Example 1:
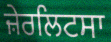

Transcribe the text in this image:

ਜ਼ੇਰਲਿਟਸਾ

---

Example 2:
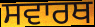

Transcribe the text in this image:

ਸਵਾਰਥ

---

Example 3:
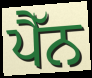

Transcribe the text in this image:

ਪੈੱਨ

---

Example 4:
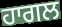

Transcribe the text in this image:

ਹਾਗਲ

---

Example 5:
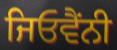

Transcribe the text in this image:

ਜਿਓਵੈਂਨੀ